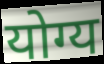
योग्य